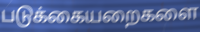
படுக்கையறைகளை